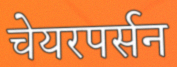
चेयरपर्सन